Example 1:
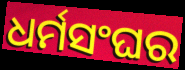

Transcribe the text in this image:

ଧର୍ମସଂଘର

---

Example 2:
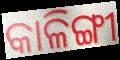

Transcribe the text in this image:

କାଳିଙ୍ଗୀ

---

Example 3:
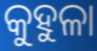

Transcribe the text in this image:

କୁହୁଳା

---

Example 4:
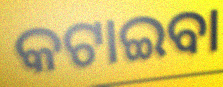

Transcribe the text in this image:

କଟାଇବା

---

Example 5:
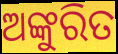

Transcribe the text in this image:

ଅଙ୍କୁରିତ